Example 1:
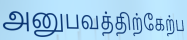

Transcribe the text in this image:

அனுபவத்திற்கேற்ப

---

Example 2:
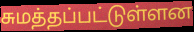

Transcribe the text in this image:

சுமத்தப்பட்டுள்ளன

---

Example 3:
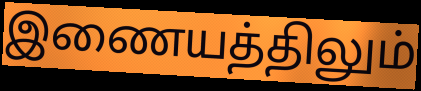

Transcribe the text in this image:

இணையத்திலும்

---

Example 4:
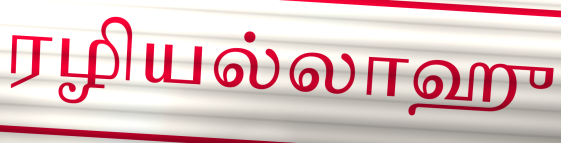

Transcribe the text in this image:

ரழியல்லாஹு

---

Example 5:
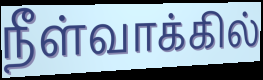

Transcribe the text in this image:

நீள்வாக்கில்